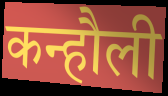
कन्हौली